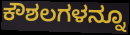
ಕೌಶಲಗಳನ್ನೂ